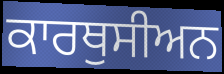
ਕਾਰਥੁਸੀਅਨ